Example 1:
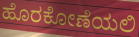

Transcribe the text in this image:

ಹೊರಕೋಣೆಯಲಿ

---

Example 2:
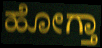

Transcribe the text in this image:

ಹೋಗ್ತಾ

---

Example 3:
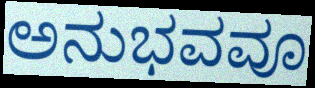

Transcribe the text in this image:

ಅನುಭವವೂ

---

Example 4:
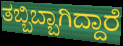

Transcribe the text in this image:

ತಬ್ಬಿಬ್ಬಾಗಿದ್ದಾರೆ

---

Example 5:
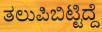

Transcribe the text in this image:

ತಲುಪಿಬಿಟ್ಟಿದ್ದೆ